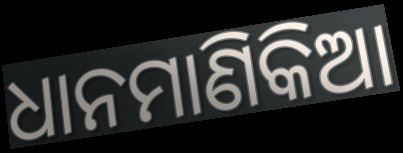
ଧାନମାଣିକିଆ